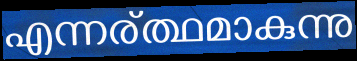
എന്നര്ത്ഥമാകുന്നു